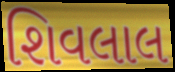
શિવલાલ